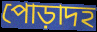
পোড়াদহ